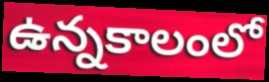
ఉన్నకాలంలో